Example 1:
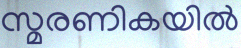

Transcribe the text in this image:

സ്മരണികയിൽ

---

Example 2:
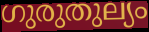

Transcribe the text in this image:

ഗുരുതുല്യം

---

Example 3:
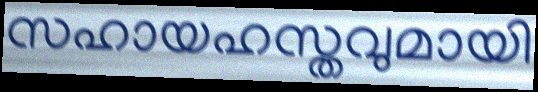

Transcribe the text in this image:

സഹായഹസ്തവുമായി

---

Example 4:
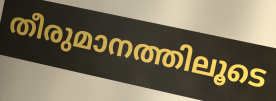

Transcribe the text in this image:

തീരുമാനത്തിലൂടെ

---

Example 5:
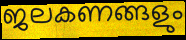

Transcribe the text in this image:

ജലകണങ്ങളും